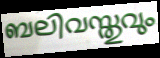
ബലിവസ്തുവും